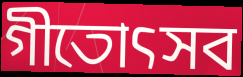
গীতোৎসব